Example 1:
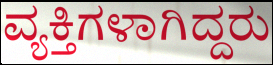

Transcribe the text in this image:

ವ್ಯಕ್ತಿಗಳಾಗಿದ್ದರು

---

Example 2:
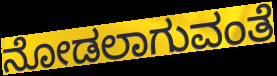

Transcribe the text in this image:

ನೋಡಲಾಗುವಂತೆ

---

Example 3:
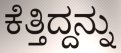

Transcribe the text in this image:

ಕೆತ್ತಿದ್ದನ್ನು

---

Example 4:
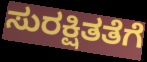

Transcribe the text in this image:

ಸುರಕ್ಷಿತತೆಗೆ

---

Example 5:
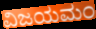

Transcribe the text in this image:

ವಿಜಯಮಂ